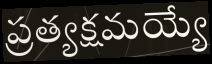
ప్రత్యక్షమయ్యే